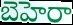
బెహెరా